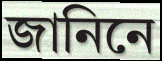
জানিনে